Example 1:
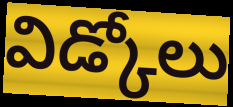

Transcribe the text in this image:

విడ్కోలు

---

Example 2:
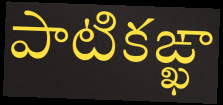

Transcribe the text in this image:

పాటికఙ్ఖా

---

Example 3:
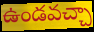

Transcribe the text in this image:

ఉండవచ్చా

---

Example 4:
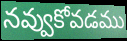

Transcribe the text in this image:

నవ్వుకోవడము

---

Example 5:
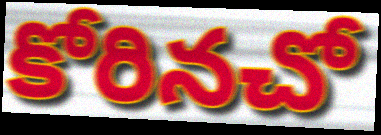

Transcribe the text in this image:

కోరినచో